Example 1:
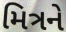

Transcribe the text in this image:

મિત્રને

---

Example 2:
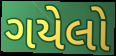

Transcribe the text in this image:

ગયેલો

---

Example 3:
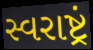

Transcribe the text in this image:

સ્વરાષ્ટ્રં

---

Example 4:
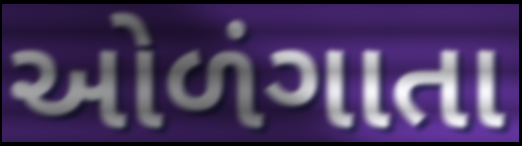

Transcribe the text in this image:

ઓળંગાતા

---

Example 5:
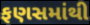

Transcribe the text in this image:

ફણસમાંથી